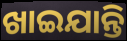
ଖାଇଯାନ୍ତି